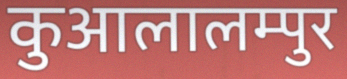
कुआलालम्पुर